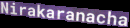
Nirakaranacha